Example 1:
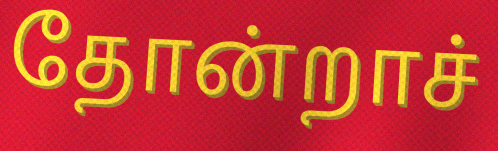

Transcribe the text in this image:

தோன்றாச்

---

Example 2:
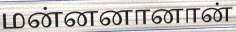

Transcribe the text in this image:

மன்னனானான்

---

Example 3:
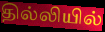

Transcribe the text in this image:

தில்லியில்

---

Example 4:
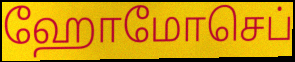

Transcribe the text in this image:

ஹோமோசெப்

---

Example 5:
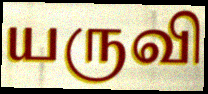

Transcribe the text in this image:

யருவி